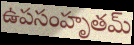
ఉపసంహృతమ్